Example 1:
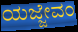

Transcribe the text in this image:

ಯಜ್ಜೇವಂ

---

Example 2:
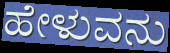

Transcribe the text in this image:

ಹೇಳುವನು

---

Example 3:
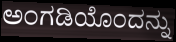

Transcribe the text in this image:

ಅಂಗಡಿಯೊಂದನ್ನು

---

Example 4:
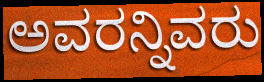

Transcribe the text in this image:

ಅವರನ್ನಿವರು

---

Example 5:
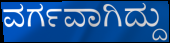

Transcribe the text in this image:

ವರ್ಗವಾಗಿದ್ದು